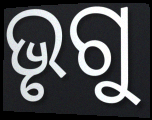
ଭୃଗୁ